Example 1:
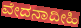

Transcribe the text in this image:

ವೇದನಾದೀಹಿ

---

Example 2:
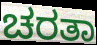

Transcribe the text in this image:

ಚರತಾ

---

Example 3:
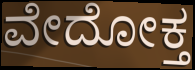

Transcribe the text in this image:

ವೇದೋಕ್ತ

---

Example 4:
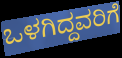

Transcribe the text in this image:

ಒಳಗಿದ್ದವರಿಗೆ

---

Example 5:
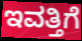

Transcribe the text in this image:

ಇವತ್ತಿಗೆ